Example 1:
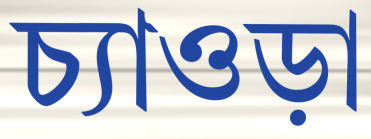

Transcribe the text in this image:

চ্যাওড়া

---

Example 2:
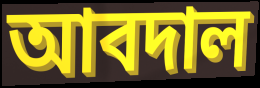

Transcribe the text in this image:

আবদাল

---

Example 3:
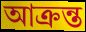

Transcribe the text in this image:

আক্রন্ত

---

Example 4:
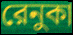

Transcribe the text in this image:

রেনুকা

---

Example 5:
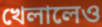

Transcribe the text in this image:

খেলালেও